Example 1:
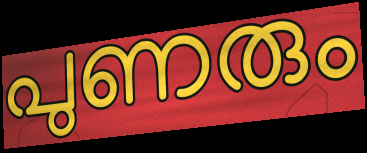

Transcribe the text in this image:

പുണരും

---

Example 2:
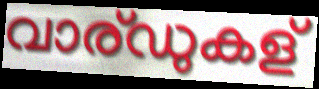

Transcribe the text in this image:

വാര്ഡുകള്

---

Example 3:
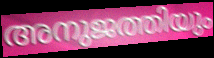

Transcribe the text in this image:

അനുജത്തിയും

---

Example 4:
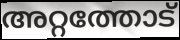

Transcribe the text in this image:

അറ്റത്തോട്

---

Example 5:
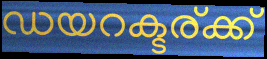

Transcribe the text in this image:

ഡയറക്ടര്ക്ക്